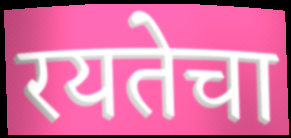
रयतेचा